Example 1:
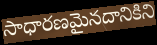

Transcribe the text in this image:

సాధారణమైనదానికిని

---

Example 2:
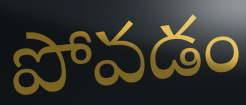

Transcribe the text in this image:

పోవడం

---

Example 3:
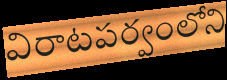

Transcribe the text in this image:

విరాటపర్వంలోని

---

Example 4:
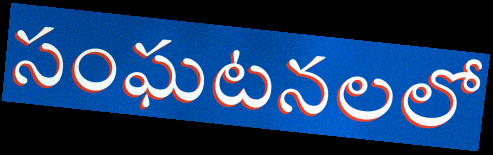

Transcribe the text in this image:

సంఘటనలలో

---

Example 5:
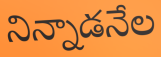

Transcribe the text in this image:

నిన్నాడనేల